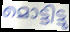
മൊട്ടിട്ടു